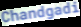
Chandgadi